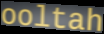
ooltah